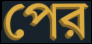
পের